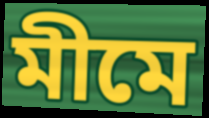
মীমে